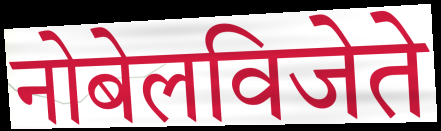
नोबेलविजेते